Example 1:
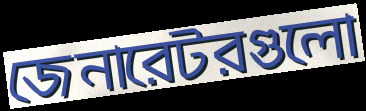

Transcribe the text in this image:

জেনারেটরগুলো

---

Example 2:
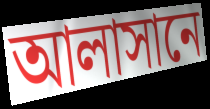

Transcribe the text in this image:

আলাসানে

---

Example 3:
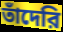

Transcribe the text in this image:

তাঁদেরি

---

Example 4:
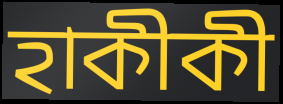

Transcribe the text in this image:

হাকীকী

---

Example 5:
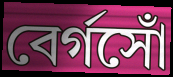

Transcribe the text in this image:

বের্গসোঁ